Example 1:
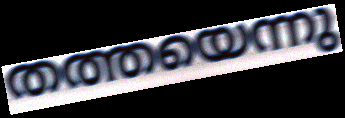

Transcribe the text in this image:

തത്തയെന്നു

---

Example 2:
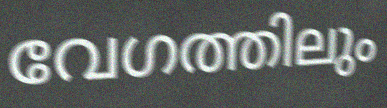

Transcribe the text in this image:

വേഗത്തിലും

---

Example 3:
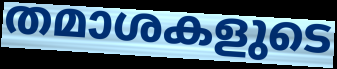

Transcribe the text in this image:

തമാശകളുടെ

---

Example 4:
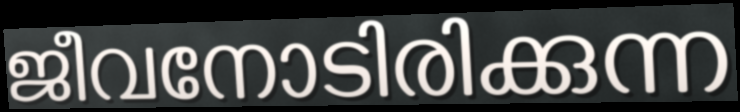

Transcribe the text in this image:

ജീവനോടിരിക്കുന്ന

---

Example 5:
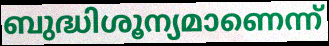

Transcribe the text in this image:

ബുദ്ധിശൂന്യമാണെന്ന്